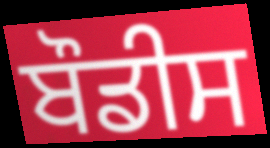
ਬੌਡੀਸ